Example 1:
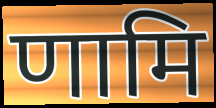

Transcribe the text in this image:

णामि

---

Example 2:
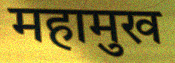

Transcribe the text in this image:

महामुख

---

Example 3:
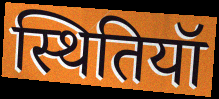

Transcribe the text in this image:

स्थितियॉ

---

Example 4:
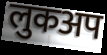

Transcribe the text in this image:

लुकअप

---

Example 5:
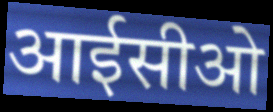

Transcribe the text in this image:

आईसीओ